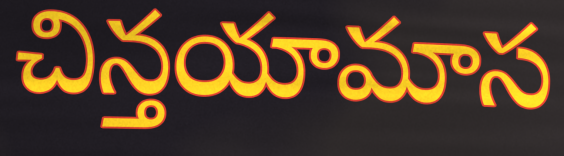
చిన్తయామాస